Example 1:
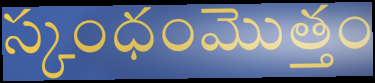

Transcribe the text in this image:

స్కంధంమొత్తం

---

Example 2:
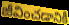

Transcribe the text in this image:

జీవించడానికీ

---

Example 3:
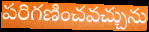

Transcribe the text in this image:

పరిగణించవచ్చును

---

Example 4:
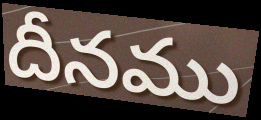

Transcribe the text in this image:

దీనము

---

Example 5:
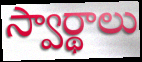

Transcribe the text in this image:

స్వార్థాలు